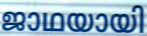
ജാഥയായി